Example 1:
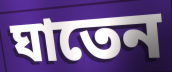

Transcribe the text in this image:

ঘাতেন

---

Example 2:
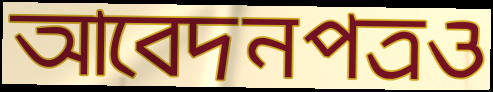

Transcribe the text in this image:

আবেদনপত্রও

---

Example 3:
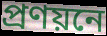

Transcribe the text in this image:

প্রণয়নে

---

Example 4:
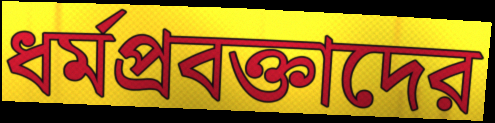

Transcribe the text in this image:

ধর্মপ্রবক্তাদের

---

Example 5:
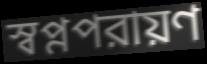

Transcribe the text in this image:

স্বপ্নপরায়ণ